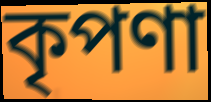
কৃপণা